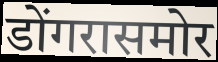
डोंगरासमोर